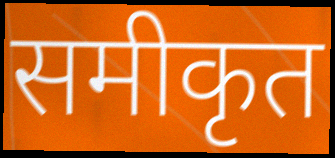
समीकृत